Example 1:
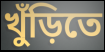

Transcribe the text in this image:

খুঁড়িতে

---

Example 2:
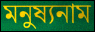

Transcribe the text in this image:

মনুষ্যনাম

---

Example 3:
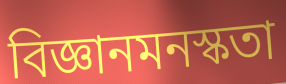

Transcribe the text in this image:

বিজ্ঞানমনস্কতা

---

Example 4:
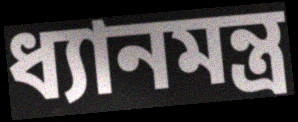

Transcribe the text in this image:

ধ্যানমন্ত্র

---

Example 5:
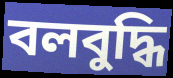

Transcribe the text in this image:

বলবুদ্ধি